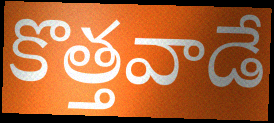
కొత్తవాడే